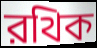
রথিক